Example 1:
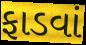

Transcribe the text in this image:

ફાડવાં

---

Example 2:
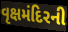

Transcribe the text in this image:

વૃક્ષમંદિરની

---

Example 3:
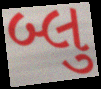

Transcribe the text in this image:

બ્લુ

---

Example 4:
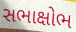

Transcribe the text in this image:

સભાક્ષોભ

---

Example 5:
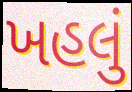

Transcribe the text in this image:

ખહલું